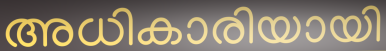
അധികാരിയായി